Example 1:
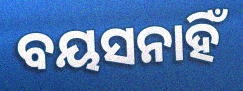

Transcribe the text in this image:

ବୟସନାହିଁ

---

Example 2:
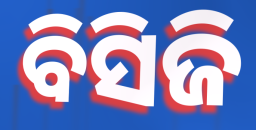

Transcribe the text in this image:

ବିସିଜି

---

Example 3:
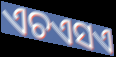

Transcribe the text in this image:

ଏଚଏସଏ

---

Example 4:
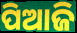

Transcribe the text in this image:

ପିଆଜି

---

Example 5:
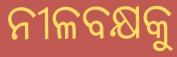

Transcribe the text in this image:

ନୀଳବକ୍ଷକୁ